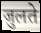
जुलते